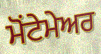
ਮੋਂਟੇਮੇਅਰ